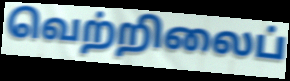
வெற்றிலைப்